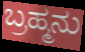
ಬ್ರಹ್ಮನು